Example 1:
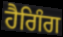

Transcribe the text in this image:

ਹੈਗਿੰਗ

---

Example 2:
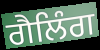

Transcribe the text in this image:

ਗੈਲਿੰਗ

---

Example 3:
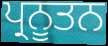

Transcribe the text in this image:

ਪ੍ਰਨੂਤਨ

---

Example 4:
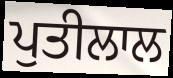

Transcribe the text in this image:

ਪੁਤੀਲਾਲ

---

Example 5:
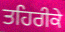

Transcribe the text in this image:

ਤਹਿਰੀਕੇ